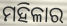
ମହିଳାର